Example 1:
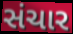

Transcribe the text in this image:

સંચાર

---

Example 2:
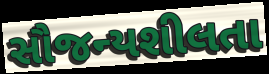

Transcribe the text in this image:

સૌજન્યશીલતા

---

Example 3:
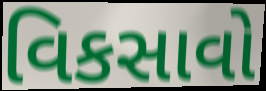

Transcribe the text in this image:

વિકસાવો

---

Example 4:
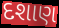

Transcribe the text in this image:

દશાણ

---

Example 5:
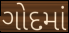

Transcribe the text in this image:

ગોદમાં